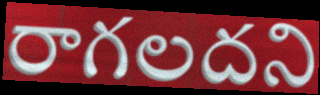
రాగలదని